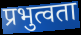
प्रभुत्वता